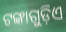
ଟଙ୍କାଗୁଡ଼ିଏ